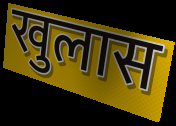
खुलास